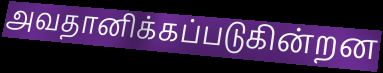
அவதானிக்கப்படுகின்றன